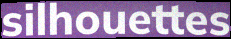
silhouettes